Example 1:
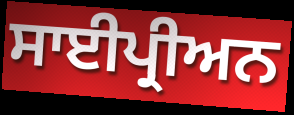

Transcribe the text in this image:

ਸਾਈਪ੍ਰੀਅਨ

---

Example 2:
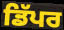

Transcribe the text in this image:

ਡਿੱਪਰ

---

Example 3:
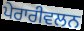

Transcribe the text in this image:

ਪੇਰਾਰੀਵਲਨ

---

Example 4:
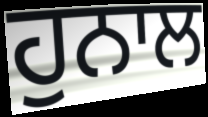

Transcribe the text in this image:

ਹੁਨਾਲ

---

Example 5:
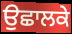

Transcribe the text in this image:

ਉਛਾਲਕੇ